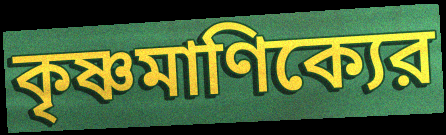
কৃষ্ণমাণিক্যের